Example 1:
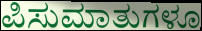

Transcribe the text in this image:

ಪಿಸುಮಾತುಗಳೂ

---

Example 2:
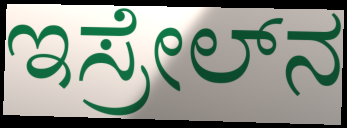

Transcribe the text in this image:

ಇಸ್ರೇಲ್‍ನ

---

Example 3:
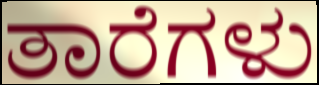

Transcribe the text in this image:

ತಾರೆಗಳು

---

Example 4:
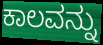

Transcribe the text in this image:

ಕಾಲವನ್ನು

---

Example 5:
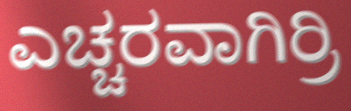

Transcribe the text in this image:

ಎಚ್ಚರವಾಗಿರ್ರಿ